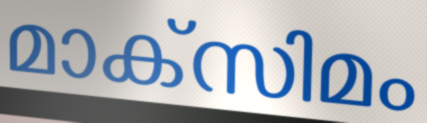
മാക്‌സിമം